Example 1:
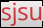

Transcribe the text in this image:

sjsu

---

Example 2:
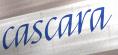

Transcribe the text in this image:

cascara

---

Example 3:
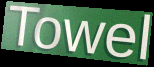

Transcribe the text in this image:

Towel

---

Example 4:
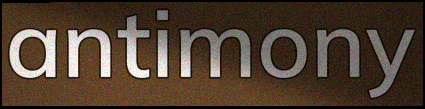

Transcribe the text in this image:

antimony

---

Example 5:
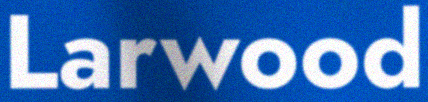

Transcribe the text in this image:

Larwood